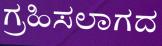
ಗ್ರಹಿಸಲಾಗದ